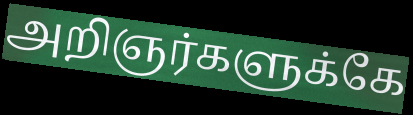
அறிஞர்களுக்கே